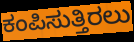
ಕಂಪಿಸುತ್ತಿರಲು